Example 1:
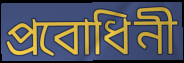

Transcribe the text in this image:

প্রবোধিনী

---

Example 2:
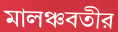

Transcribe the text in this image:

মালঞ্চবতীর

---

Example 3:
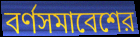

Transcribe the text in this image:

বর্ণসমাবেশের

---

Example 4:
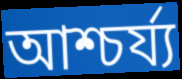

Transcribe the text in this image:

আশ্চর্য্য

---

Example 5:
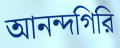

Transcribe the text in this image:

আনন্দগিরি